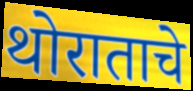
थोराताचे